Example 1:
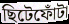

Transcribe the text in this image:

ছিটেফোঁটা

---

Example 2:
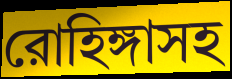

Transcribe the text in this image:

রোহিঙ্গাসহ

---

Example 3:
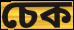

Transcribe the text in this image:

চেক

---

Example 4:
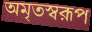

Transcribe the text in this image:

অমৃতস্বরূপ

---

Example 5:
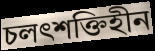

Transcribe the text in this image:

চলৎশক্তিহীন